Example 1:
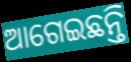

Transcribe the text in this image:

ଆଗେଇଛନ୍ତି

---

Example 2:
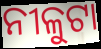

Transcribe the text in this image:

ନୀଳୁଟା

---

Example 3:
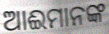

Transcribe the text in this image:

ଆଈମାନଙ୍କ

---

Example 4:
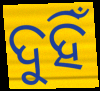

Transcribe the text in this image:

ଦୁହିଁ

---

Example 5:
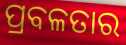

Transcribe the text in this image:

ପ୍ରବଳତାର